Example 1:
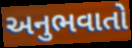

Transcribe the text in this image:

અનુભવાતો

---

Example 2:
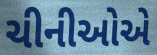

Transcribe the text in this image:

ચીનીઓએ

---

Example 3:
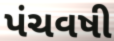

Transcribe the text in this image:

પંચવષી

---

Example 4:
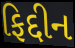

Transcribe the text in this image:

ફિદ્દીન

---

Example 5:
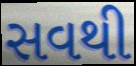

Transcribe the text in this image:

સવથી